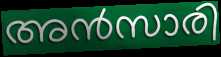
അൻസാരി